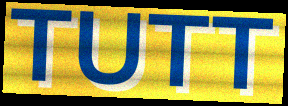
TUTT